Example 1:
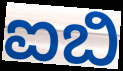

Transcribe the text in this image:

ಐಬಿ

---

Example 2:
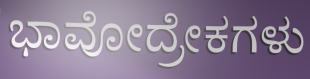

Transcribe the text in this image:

ಭಾವೋದ್ರೇಕಗಳು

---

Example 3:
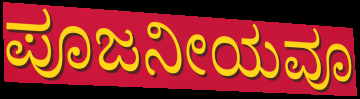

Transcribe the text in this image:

ಪೂಜನೀಯವೂ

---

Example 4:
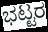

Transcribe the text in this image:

ಭಟ್ಟರ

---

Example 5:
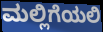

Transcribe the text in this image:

ಮಲ್ಲಿಗೆಯಲಿ